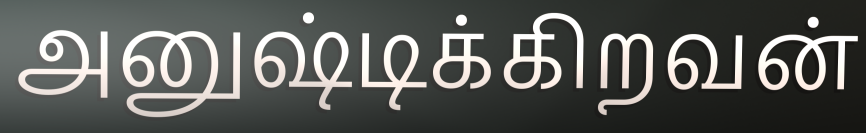
அனுஷ்டிக்கிறவன்